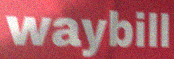
waybill